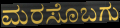
ಮರಸೊಬಗು